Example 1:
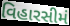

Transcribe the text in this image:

વિહારસીમં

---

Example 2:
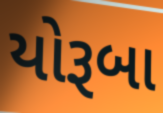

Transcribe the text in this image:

યોરૂબા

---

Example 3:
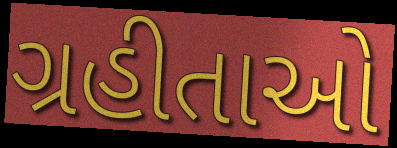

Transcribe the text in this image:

ગ્રહીતાઓ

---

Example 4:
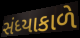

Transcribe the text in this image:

સંધ્યાકાળે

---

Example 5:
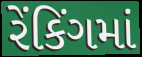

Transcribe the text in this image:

રેંકિંગમાં